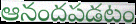
ఆనందపడటం